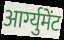
आर्ग्युमेंट